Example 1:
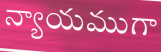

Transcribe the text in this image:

న్యాయముగా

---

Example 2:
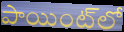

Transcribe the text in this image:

పాయింట్‌లో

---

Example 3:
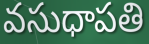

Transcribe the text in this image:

వసుధాపతి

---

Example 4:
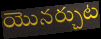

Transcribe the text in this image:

యొనర్చుట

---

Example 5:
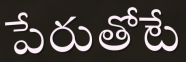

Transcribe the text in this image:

పేరుతోటే